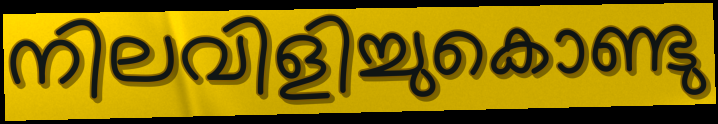
നിലവിളിച്ചുകൊണ്ടു